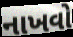
નાખવો